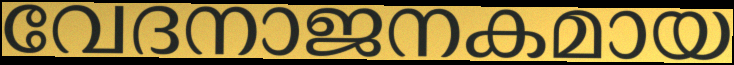
വേദനാജനകമായ